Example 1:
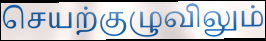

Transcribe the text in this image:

செயற்குழுவிலும்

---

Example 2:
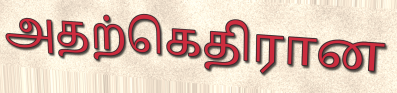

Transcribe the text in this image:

அதற்கெதிரான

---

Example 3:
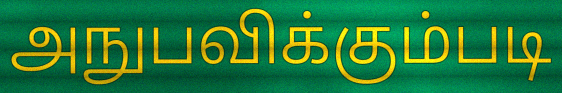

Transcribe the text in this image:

அநுபவிக்கும்படி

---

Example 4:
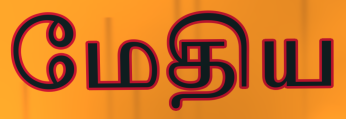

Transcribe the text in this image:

மேதிய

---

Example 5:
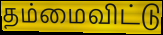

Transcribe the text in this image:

தம்மைவிட்டு